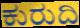
ಕುರುದಿ